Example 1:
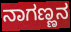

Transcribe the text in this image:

ನಾಗಣ್ಣನ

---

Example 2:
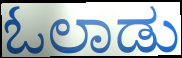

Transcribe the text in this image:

ಓಲಾಡು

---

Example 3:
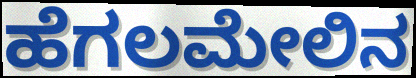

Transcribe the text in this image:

ಹೆಗಲಮೇಲಿನ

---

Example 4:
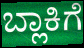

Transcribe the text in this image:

ಬ್ಲಾಕಿಗೆ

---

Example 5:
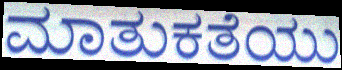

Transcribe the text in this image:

ಮಾತುಕತೆಯು